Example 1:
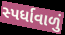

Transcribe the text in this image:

સ્પર્ધાવાળું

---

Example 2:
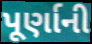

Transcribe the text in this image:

પૂર્ણાની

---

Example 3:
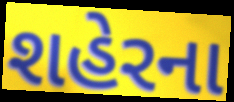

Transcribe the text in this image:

શહેરના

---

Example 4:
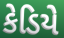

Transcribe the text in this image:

કેડિયે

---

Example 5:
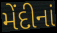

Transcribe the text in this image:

મેંદીનાં